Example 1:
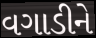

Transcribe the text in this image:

વગાડીને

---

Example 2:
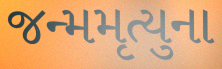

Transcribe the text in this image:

જન્મમૃત્યુના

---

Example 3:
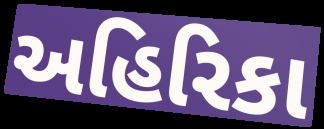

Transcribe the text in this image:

અહિરિકા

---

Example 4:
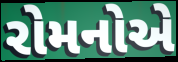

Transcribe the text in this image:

રોમનોએ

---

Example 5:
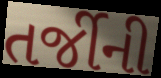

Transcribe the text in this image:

તર્જીની